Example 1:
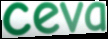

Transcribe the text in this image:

ceva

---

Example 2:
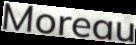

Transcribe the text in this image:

Moreau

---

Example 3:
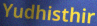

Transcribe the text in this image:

Yudhisthir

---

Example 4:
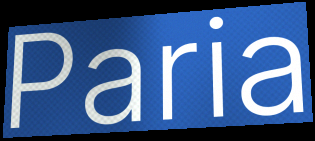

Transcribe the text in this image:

Paria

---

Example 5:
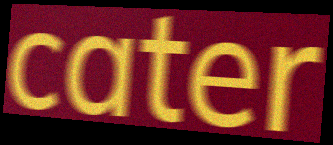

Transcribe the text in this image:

cater